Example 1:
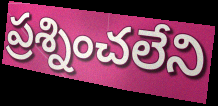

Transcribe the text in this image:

ప్రశ్నించలేని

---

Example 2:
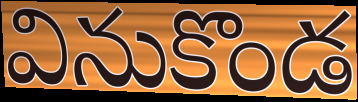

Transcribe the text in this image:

వినుకొండ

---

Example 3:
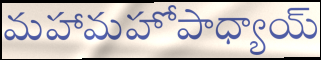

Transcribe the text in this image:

మహామహోపాధ్యాయ్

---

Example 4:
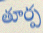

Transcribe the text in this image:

తూర్ప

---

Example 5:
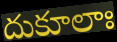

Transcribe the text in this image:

దుకూలాః